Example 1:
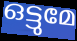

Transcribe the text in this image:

ഒട്ടുമേ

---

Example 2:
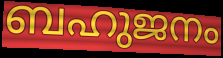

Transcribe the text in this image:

ബഹുജനം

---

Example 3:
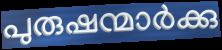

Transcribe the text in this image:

പുരുഷന്മാർക്കു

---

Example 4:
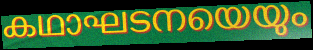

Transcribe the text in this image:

കഥാഘടനയെയും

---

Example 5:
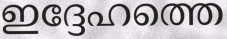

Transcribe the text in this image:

ഇദ്ദേഹത്തെ